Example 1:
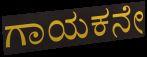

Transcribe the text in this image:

ಗಾಯಕನೇ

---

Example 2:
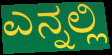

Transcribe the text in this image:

ಎನ್ನಲ್ಲಿ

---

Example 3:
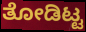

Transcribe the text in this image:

ತೋಡಿಟ್ಟ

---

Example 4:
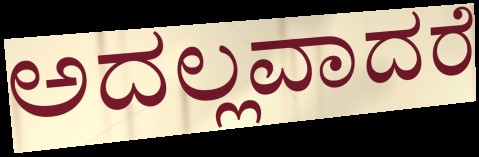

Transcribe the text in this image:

ಅದಲ್ಲವಾದರೆ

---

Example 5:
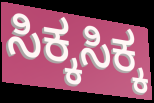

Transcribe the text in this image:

ಸಿಕ್ಕಸಿಕ್ಕ